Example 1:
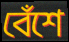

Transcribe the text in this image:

বেঁশে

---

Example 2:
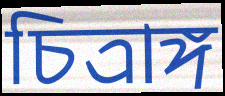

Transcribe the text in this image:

চিত্রাঙ্গ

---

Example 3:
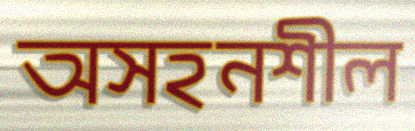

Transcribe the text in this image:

অসহনশীল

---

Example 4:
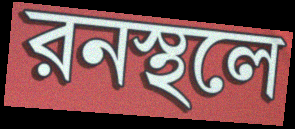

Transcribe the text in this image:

রনস্থলে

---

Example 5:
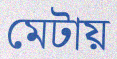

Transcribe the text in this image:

মেটায়